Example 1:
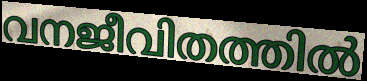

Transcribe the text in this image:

വനജീവിതത്തിൽ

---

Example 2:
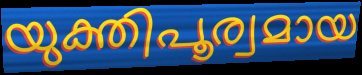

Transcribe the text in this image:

യുക്തിപൂര്വമായ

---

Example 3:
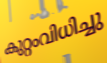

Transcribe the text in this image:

കുറ്റംവിധിച്ചു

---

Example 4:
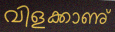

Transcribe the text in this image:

വിളക്കാണു്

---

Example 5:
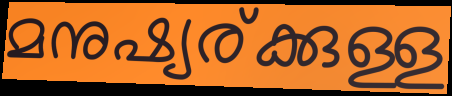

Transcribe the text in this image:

മനുഷ്യര്ക്കുള്ള